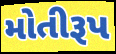
મોતીરૂપ